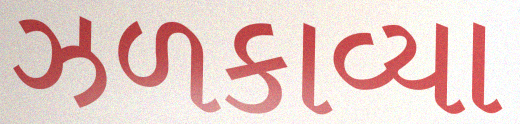
ઝળકાવ્યા